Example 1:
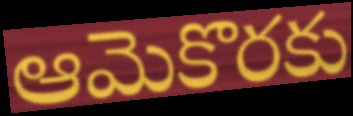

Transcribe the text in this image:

ఆమెకొరకు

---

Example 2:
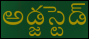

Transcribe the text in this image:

అడ్జస్టెడ్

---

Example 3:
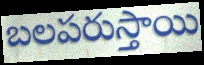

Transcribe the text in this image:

బలపరుస్తాయి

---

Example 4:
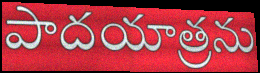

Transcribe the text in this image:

పాదయాత్రను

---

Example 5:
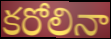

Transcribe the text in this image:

కరోలినా